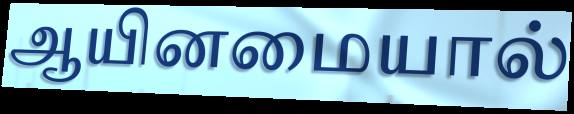
ஆயினமையால்